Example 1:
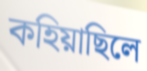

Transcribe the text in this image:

কহিয়াছিলে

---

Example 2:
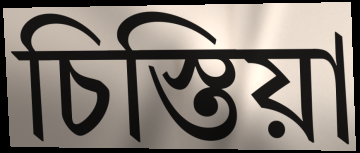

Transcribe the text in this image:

চিস্তিয়া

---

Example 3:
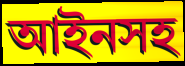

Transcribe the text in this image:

আইনসহ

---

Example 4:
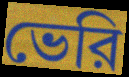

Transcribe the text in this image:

ভেরি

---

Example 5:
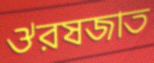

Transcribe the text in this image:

ঔরষজাত